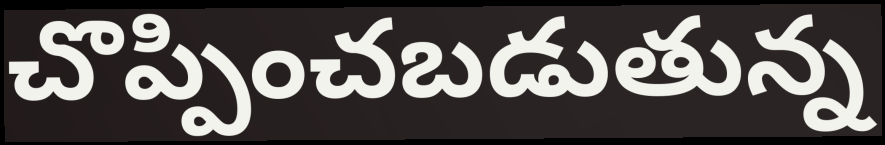
చొప్పించబడుతున్న